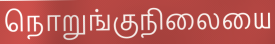
நொறுங்குநிலையை